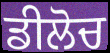
ਡੀਲੋਚ